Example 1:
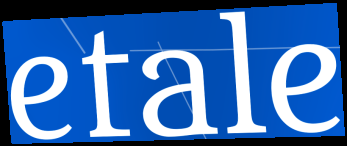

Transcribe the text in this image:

etale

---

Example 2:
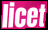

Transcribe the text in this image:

licet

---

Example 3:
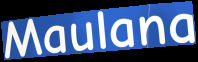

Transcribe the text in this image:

Maulana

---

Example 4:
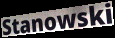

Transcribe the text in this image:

Stanowski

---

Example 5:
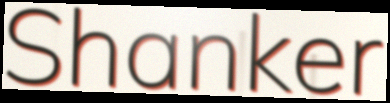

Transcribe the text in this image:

Shanker